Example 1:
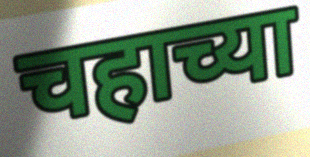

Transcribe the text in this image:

चहाच्या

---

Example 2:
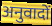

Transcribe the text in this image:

अनुवादों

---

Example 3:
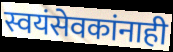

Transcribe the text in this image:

स्वयंसेवकांनाही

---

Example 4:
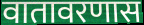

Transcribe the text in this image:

वातावरणास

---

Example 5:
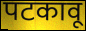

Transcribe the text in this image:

पटकावू